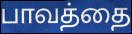
பாவத்தை